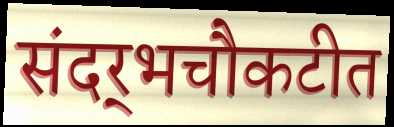
संदर्भचौकटीत